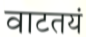
वाटतयं